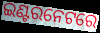
ଇଣ୍ଟରନେଟରେ